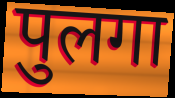
पुलगा